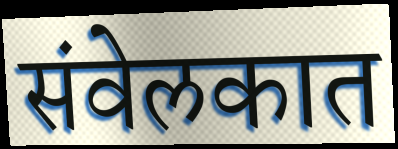
संवेलकात